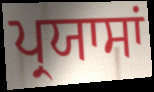
ਪ੍ਰਯਾਸਾਂ